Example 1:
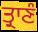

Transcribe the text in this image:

ਤ੍ਰਾਣੰ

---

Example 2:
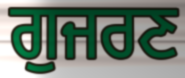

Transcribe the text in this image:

ਗੁਜਰਣ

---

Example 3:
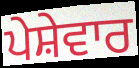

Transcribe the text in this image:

ਪੇਸ਼ੇਵਾਰ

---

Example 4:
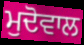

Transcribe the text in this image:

ਮੁਦੋਵਾਲ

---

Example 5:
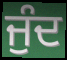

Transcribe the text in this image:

ਜੁੰਦ